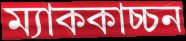
ম্যাককাচ্চন